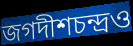
জগদীশচন্দ্রও